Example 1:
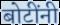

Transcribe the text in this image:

बोटींनी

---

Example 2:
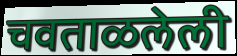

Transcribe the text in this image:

चवताळलेली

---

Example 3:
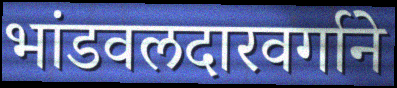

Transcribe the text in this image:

भांडवलदारवर्गाने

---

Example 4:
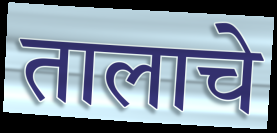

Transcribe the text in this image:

तालाचे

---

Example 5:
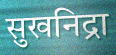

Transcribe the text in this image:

सुखनिद्रा